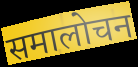
समालोचन